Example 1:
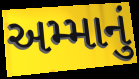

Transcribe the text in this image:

અમ્માનું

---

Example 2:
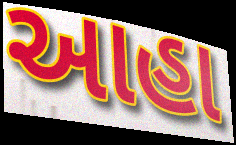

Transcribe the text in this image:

આહા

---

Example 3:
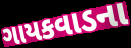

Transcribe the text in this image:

ગાયકવાડના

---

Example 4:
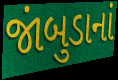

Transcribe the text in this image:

જાંબુડાનાં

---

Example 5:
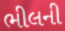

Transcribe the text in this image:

ભીલની